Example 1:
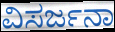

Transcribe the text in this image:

ವಿಸರ್ಜನಾ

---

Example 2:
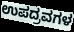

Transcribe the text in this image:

ಉಪದ್ರವಗಳ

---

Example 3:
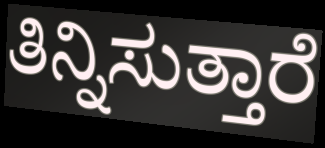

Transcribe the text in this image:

ತಿನ್ನಿಸುತ್ತಾರೆ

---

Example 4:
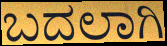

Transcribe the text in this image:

ಬದಲಾಗಿ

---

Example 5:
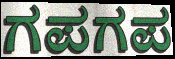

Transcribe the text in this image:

ಗಪಗಪ